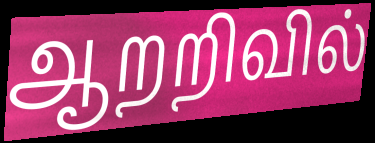
ஆறறிவில்